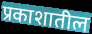
प्रकाशातील